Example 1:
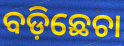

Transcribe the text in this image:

ବଡ଼ିଛେଚା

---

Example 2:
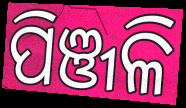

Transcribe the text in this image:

ପିଞ୍ଜଳି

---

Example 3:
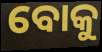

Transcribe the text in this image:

ବୋକୁ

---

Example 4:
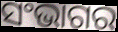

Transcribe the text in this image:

ସଂଭାଗର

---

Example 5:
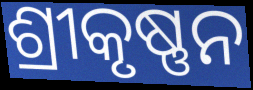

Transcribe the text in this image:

ଶ୍ରୀକୃଷ୍ଣନ